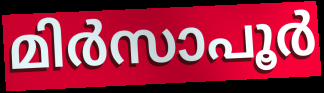
മിർസാപൂർ